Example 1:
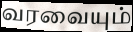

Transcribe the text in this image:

வரவையும்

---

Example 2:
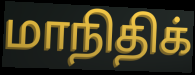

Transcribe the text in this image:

மாநிதிக்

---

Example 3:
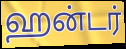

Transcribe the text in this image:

ஹன்டர்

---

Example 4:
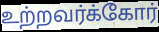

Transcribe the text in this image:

உற்றவர்க்கோர்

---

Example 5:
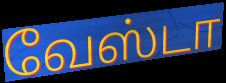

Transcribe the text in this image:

வேஸ்டா